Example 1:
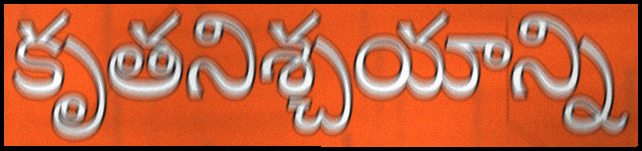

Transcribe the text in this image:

కృతనిశ్చయాన్ని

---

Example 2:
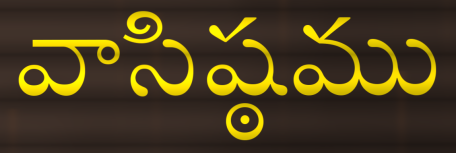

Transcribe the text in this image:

వాసిష్ఠము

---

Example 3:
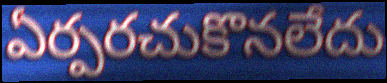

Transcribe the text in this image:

ఏర్పరచుకొనలేదు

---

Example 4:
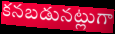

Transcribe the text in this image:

కనబడునట్లుగా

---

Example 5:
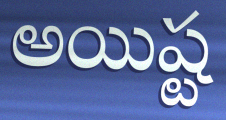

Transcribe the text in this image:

అయిష్ట